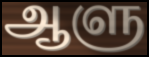
ஆளு